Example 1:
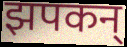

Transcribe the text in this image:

झपकन्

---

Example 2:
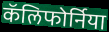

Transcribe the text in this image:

कॅलिफोर्निया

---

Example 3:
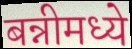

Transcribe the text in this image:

बन्नीमध्ये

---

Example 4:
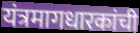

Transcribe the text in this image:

यंत्रमागधारकांची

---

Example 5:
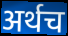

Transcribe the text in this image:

अर्थच